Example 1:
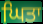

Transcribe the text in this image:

ਘਿਤਾ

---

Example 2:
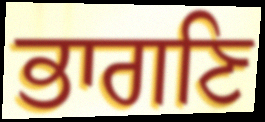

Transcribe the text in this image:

ਭਾਗਣਿ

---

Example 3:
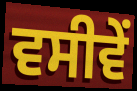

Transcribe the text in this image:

ਵਸੀਵੇਂ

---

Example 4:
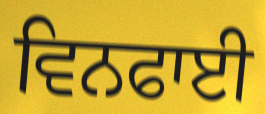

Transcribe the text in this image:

ਵਿਨਫਾਈ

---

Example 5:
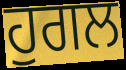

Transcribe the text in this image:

ਹੁਗਲ